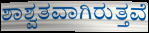
ಶಾಶ್ವತವಾಗಿರುತ್ತವೆ